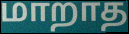
மாறாத